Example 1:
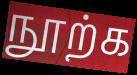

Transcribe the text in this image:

நூற்க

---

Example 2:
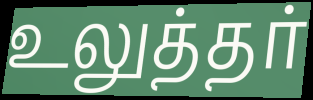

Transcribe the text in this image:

உலுத்தர்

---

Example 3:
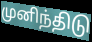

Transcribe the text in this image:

முனிந்திடு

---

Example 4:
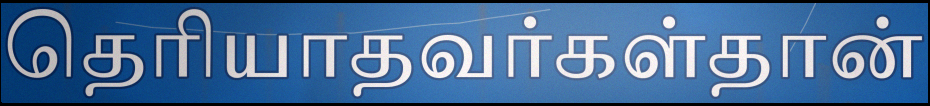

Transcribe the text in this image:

தெரியாதவர்கள்தான்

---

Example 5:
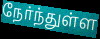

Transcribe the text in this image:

நேர்ந்துள்ள